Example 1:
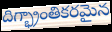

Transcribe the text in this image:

దిగ్భ్రాంతికరమైన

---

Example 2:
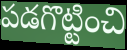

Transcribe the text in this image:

పడగొట్టించి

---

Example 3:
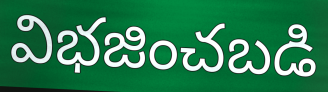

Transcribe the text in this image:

విభజించబడి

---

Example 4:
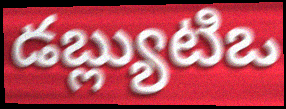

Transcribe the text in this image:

డబ్ల్యుటిఒ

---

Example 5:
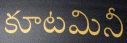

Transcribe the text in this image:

కూటమినీ